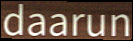
daarun